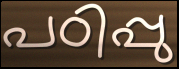
പഠിപ്പു